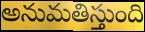
అనుమతిస్తుంది